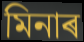
মিনাৰ